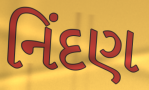
નિંદણ